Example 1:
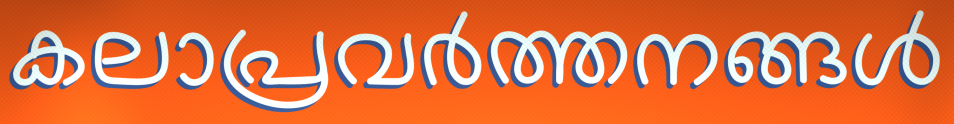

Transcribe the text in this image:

കലാപ്രവർത്തനങ്ങൾ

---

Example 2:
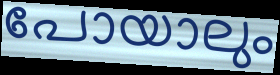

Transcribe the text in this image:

പോയാലും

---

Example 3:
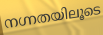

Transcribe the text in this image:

നഗ്നതയിലൂടെ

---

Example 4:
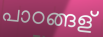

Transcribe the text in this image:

പാഠങ്ങള്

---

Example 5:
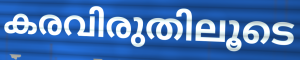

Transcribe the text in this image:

കരവിരുതിലൂടെ